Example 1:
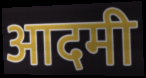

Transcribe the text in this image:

आदमी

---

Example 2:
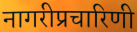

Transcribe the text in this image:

नागरीप्रचारिणी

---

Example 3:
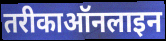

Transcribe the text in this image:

तरीकाऑनलाइन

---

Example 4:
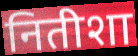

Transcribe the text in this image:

नितीशा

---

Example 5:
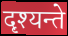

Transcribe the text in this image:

दृश्यन्ते